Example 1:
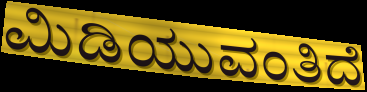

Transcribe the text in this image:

ಮಿಡಿಯುವಂತಿದೆ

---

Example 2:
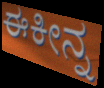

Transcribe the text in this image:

ಈಕೀನ್ನ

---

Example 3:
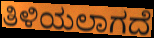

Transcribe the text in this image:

ತಿಳಿಯಲಾಗದೆ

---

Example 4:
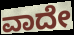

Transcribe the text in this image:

ವಾದೇ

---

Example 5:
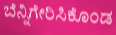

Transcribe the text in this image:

ಬೆನ್ನಿಗೇರಿಸಿಕೊಂಡ